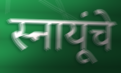
स्नायूंचे